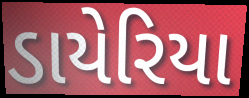
ડાયેરિયા